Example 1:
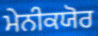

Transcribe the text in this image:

ਮੇਨੀਕਯੋਰ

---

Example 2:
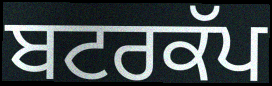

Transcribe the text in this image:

ਬਟਰਕੱਪ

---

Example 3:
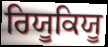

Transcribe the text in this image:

ਰਿਯੂਕਿਯੂ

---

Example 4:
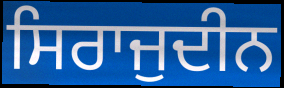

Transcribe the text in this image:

ਸਿਰਾਜੁਦੀਨ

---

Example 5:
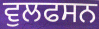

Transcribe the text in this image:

ਵੁਲਫਸਨ